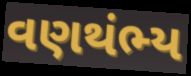
વણથંભ્ય